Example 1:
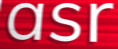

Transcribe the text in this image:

asr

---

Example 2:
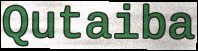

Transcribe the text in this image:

Qutaiba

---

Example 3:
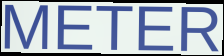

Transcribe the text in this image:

METER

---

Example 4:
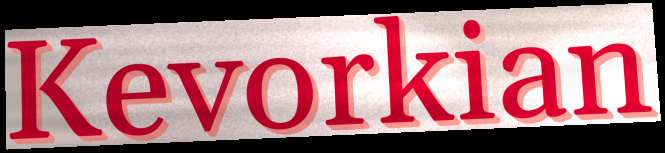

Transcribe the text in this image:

Kevorkian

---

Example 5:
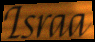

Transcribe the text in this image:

Israa